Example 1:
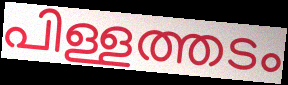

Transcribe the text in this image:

പിള്ളത്തടം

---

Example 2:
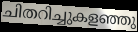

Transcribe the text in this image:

ചിതറിച്ചുകളഞ്ഞു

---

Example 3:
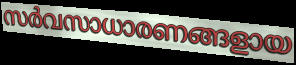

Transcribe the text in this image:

സർവസാധാരണങ്ങളായ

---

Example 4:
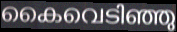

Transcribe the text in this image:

കൈവെടിഞ്ഞു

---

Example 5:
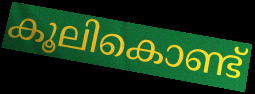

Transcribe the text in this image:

കൂലികൊണ്ട്